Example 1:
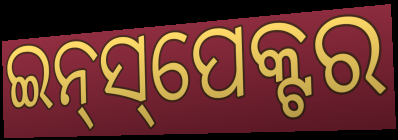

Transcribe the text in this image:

ଇନ୍‍ସ୍‌ପେକ୍ଟର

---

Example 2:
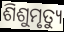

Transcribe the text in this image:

ଶିଶୁମୃତ୍ୟୁ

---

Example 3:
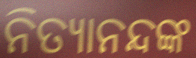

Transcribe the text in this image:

ନିତ୍ୟାନନ୍ଦଙ୍କ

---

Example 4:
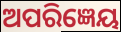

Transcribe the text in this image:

ଅପରିଜ୍ଞେୟ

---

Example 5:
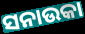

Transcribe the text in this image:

ସନାଉକା